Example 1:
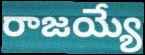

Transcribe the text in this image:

రాజయ్యే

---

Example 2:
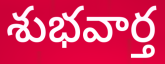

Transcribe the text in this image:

శుభవార్త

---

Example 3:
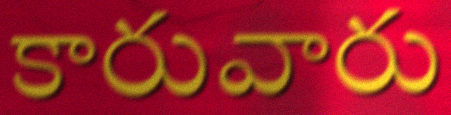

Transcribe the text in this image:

కారువారు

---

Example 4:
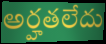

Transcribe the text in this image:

అర్హతలేదు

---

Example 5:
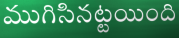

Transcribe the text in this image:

ముగిసినట్టయింది